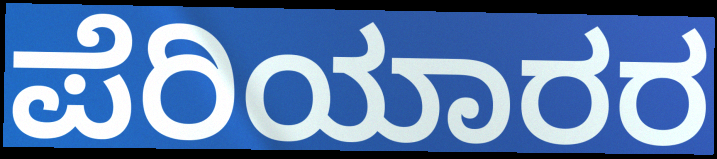
ಪೆರಿಯಾರರ